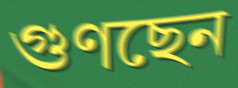
গুণছেন